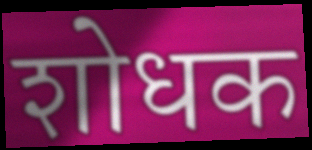
शोधक